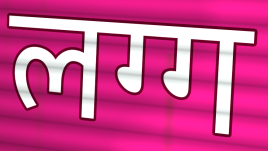
लग्ग